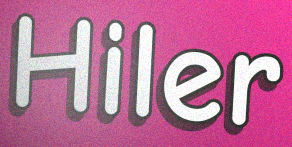
Hiler